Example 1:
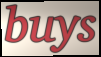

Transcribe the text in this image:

buys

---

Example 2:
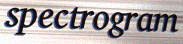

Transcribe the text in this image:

spectrogram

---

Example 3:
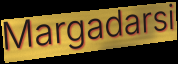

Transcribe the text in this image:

Margadarsi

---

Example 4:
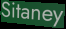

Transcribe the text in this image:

Sitaney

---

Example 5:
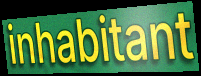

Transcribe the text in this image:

inhabitant